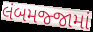
લંબમજ્જામાં